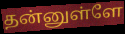
தன்னுள்ளே